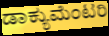
ಡಾಕ್ಯುಮೆಂಟರಿ